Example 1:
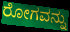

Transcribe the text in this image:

ರೋಗವನ್ನು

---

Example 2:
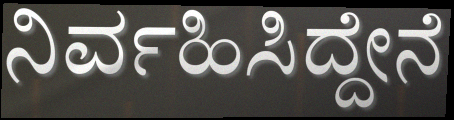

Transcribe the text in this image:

ನಿರ್ವಹಿಸಿದ್ದೇನೆ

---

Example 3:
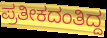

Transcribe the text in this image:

ಪ್ರತೀಕದಂತಿದ್ದ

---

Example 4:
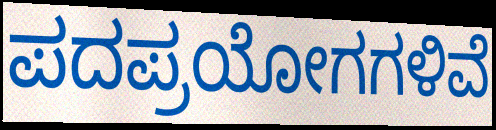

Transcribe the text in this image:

ಪದಪ್ರಯೋಗಗಳಿವೆ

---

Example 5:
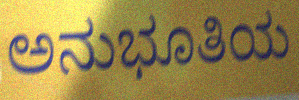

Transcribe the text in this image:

ಅನುಭೂತಿಯ